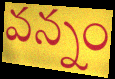
వన్నం